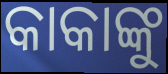
କାକାଙ୍କୁ